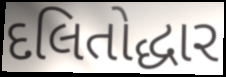
દલિતોદ્ધાર